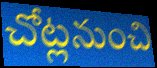
చోట్లనుంచి